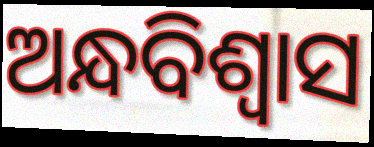
ଅନ୍ଧବିଶ୍ଵାସ